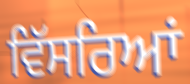
ਵਿੱਸਰਿਆਂ